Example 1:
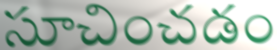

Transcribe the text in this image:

సూచించడం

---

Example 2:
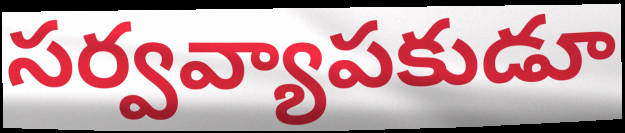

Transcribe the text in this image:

సర్వవ్యాపకుడూ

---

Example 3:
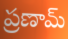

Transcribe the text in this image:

ప్రణామ్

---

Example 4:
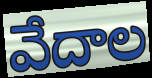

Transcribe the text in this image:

వేదాల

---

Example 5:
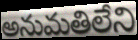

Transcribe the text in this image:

అనుమతిలేని